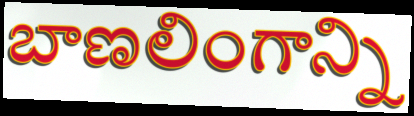
బాణలింగాన్ని